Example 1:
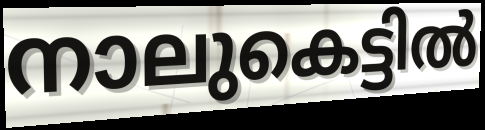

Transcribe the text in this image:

നാലുകെട്ടിൽ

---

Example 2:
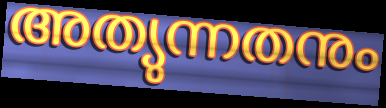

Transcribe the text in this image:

അത്യുന്നതനും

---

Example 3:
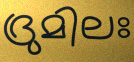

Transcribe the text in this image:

ദ്രുമിലഃ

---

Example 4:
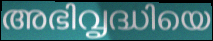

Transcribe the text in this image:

അഭിവൃദ്ധിയെ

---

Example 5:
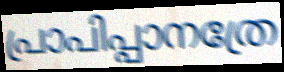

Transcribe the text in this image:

പ്രാപിപ്പാനത്രേ